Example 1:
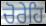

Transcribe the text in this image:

ਚੋਰੇਹਿ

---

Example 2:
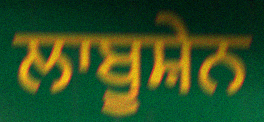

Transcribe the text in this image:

ਲਾਬੂਸ਼ੇਨ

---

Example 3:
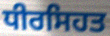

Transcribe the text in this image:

ਧੀਰਸਿਹਤ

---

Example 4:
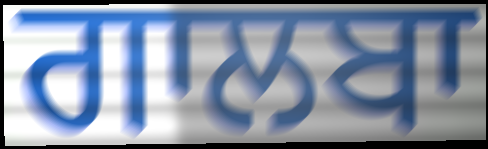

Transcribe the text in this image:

ਗਾਲਬਾ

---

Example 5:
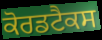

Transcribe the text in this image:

ਕੋਰਡਟੈਕਸ